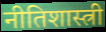
नीतिशास्त्री